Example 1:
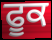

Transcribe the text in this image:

ਫੂਕ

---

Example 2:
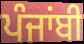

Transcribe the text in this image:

ਪੰਜਾਂਬੀ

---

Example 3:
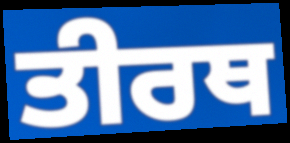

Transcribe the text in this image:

ਤੀਰਥ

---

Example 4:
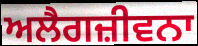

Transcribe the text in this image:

ਅਲੈਗਜ਼ੀਵਨਾ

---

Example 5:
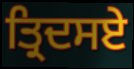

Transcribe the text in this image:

ਤ੍ਰਿਦਸਏ